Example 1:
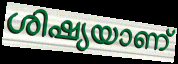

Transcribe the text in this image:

ശിഷ്യയാണ്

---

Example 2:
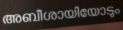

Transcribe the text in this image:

അബീശായിയോടും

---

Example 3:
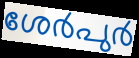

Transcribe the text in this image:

ശേർപുർ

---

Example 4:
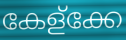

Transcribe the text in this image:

കേള്ക്കേ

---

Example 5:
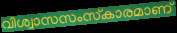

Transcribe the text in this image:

വിശ്വാസസംസ്‌കാരമാണ്